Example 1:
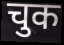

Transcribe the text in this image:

चुक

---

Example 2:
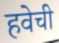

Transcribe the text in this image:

हवेची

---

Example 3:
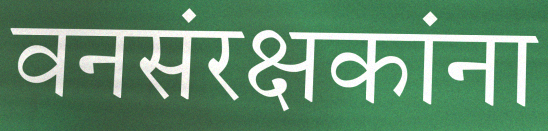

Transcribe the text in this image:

वनसंरक्षकांना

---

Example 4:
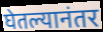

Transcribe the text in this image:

घेतल्यानंतर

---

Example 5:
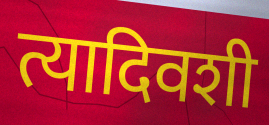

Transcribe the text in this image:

त्यादिवशी